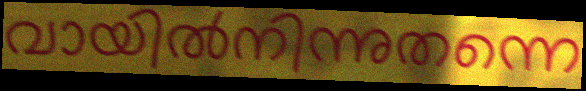
വായിൽനിന്നുതന്നെ